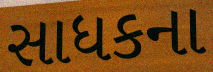
સાધકના